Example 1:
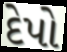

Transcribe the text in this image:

દેપો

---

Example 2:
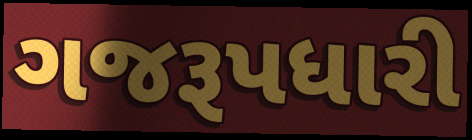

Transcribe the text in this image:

ગજરૂપધારી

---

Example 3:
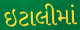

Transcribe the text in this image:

ઇટાલીમાં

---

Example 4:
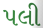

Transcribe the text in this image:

પલી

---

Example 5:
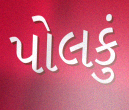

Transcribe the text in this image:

પોલકું